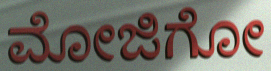
ಮೋಜಿಗೋ